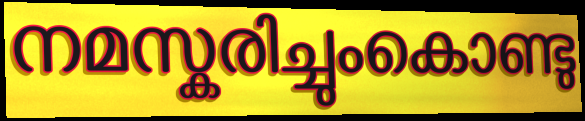
നമസ്കരിച്ചുംകൊണ്ടു